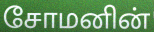
சோமனின்